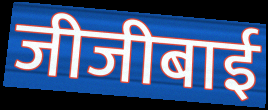
जीजीबाई